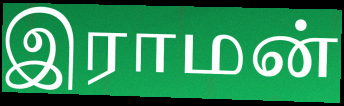
இராமன்